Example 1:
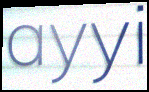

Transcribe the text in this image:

ayyi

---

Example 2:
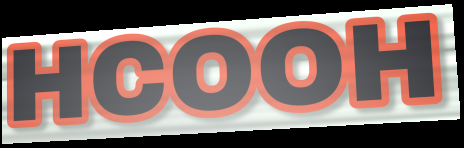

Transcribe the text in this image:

HCOOH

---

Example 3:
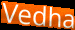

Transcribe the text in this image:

Vedha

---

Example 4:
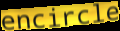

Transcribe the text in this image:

encircle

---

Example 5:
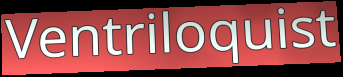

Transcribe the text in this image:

Ventriloquist